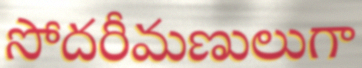
సోదరీమణులుగా